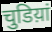
चुडिय़ां